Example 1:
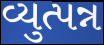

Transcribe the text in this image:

વ્યુત્પન્ન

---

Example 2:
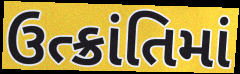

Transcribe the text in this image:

ઉત્ક્રાંતિમાં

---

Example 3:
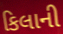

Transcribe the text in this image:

કિલાની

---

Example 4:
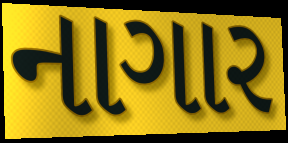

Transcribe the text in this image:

નાગાર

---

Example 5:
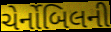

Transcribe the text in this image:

ચેર્નોબિલની